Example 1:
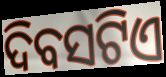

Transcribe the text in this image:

ଦିବସଟିଏ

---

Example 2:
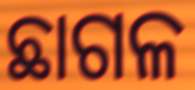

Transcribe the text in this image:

ଛାଗଳ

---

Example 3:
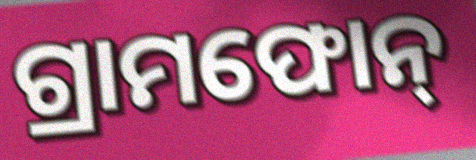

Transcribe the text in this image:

ଗ୍ରାମଫୋନ୍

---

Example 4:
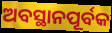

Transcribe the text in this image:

ଅବସ୍ଥାନପୂର୍ବକ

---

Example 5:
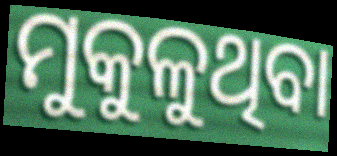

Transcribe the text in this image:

ମୁକୁଳୁଥିବା